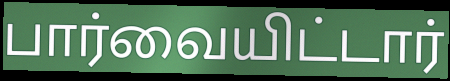
பார்வையிட்டார்